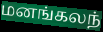
மனங்கலந்